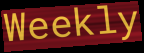
Weekly